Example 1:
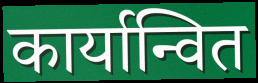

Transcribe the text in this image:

कार्यान्वित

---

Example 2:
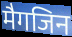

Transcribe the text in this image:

मैगजिन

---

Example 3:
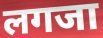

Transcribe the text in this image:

लगजा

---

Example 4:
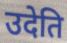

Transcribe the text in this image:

उदेति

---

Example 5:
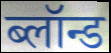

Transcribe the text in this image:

ब्लॉन्ड